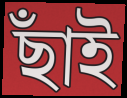
ছাঁই